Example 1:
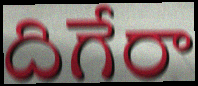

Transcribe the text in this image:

దిగేరా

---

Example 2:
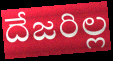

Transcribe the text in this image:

దేజరిల్ల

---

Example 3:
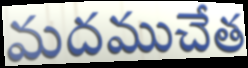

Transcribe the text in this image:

మదముచేత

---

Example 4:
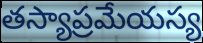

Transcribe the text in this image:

తస్యాప్రమేయస్య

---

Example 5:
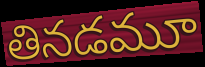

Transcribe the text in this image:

తినడమూ